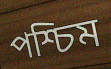
পশ্চিম